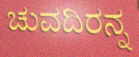
ಚುವದಿರನ್ನ